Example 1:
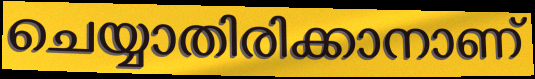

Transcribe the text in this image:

ചെയ്യാതിരിക്കാനാണ്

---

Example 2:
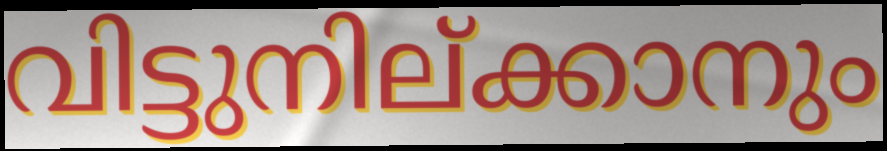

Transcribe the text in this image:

വിട്ടുനില്ക്കാനും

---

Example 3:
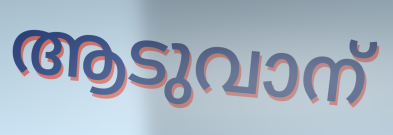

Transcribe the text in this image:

ആടുവാന്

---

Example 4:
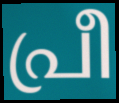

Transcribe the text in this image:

പ്രീ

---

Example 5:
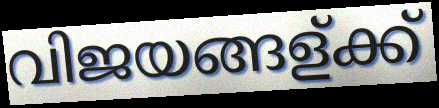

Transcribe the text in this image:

വിജയങ്ങള്ക്ക്